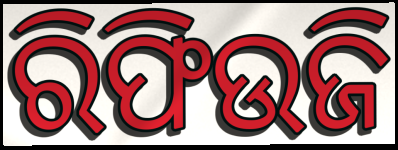
ରିଫିଉଜି